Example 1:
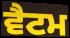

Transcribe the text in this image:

ਵੈਟਮ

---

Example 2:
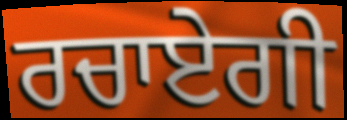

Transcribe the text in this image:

ਰਚਾਏਗੀ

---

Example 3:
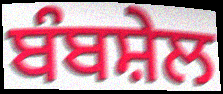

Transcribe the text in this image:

ਬੰਬਸ਼ੇਲ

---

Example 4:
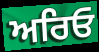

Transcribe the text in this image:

ਅਰਿਓ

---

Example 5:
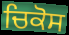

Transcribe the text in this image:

ਚਿਕੋਸ